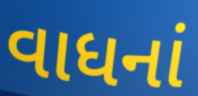
વાધનાં